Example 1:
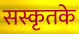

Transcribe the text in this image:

सस्कृतके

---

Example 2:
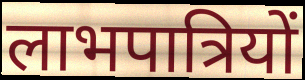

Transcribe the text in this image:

लाभपात्रियों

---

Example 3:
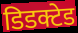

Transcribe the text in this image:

डिडक्टेड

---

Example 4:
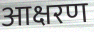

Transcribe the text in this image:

आक्षरण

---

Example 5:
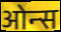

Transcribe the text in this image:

ओन्स